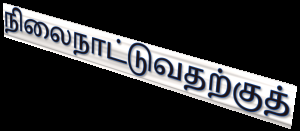
நிலைநாட்டுவதற்குத்